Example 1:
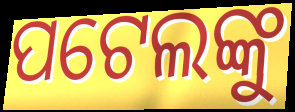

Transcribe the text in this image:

ପଟେଲଙ୍କୁ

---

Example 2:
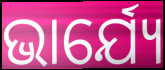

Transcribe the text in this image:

ଭାର୍ଯ୍ଯେ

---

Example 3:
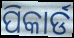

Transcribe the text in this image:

ପିକାର୍ଡ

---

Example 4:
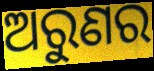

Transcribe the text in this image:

ଅରୁଣର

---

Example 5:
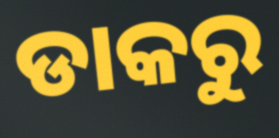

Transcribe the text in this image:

ଡାକରୁ